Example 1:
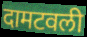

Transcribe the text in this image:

दामटवली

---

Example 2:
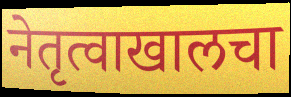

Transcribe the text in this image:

नेतृत्वाखालचा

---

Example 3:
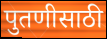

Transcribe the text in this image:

पुतणीसाठी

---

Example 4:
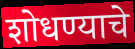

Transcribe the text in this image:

शोधण्याचे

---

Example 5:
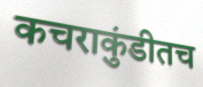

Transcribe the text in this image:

कचराकुंडीतच